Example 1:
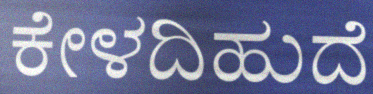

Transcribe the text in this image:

ಕೇಳದಿಹುದೆ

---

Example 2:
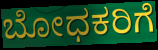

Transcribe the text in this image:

ಬೋಧಕರಿಗೆ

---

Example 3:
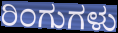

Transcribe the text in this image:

ರಿಂಗುಗಳು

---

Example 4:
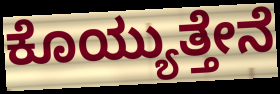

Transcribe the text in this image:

ಕೊಯ್ಯುತ್ತೇನೆ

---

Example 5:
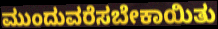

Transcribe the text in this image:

ಮುಂದುವರೆಸಬೇಕಾಯಿತು